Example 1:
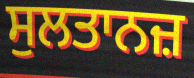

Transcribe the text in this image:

ਸੁਲਤਾਨਜ਼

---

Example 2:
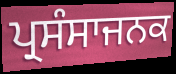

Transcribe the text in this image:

ਪ੍ਰਸੰਸਾਜਨਕ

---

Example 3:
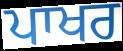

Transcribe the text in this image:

ਪਾਖਰ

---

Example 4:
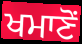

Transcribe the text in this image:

ਖਮਾਣੋਂ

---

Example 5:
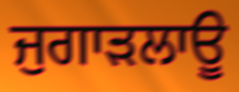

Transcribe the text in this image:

ਜੁਗਾੜਲਾਊ